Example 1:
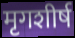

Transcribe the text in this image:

मृगशीर्ष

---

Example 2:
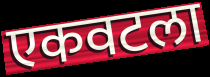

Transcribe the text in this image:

एकवटला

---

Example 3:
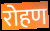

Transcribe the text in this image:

रोहण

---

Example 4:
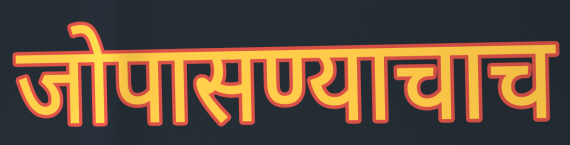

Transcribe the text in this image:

जोपासण्याचाच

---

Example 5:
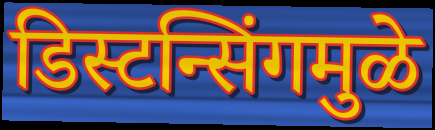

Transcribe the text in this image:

डिस्टन्सिंगमुळे